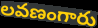
లవణంగారు